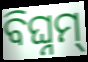
ବିଘ୍ନମ୍